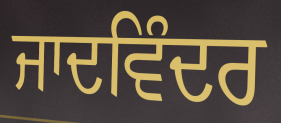
ਜਾਦਵਿੰਦਰ